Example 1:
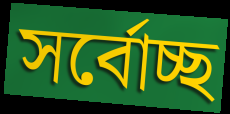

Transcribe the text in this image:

সৰ্বোচ্ছ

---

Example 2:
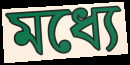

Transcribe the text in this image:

মধ্যে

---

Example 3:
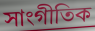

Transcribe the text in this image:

সাংগীতিক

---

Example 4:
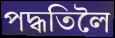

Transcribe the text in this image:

পদ্ধতিলৈ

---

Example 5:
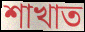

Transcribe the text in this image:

শাখাত